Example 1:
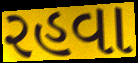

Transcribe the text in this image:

રહવા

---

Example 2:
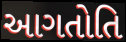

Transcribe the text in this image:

આગતોતિ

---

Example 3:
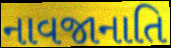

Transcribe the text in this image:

નાવજાનાતિ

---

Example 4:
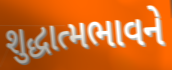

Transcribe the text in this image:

શુદ્ધાત્મભાવને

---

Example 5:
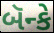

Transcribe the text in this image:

બૅન્કે